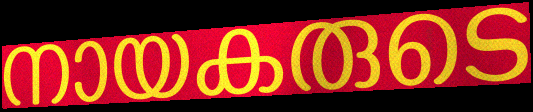
നായകരുടെ